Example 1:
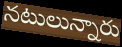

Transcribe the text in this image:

నటులున్నారు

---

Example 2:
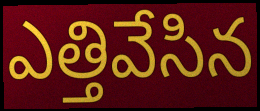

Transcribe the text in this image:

ఎత్తివేసిన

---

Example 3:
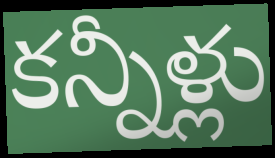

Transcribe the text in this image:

కన్నీళ్లు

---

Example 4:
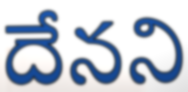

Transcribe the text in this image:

దేనని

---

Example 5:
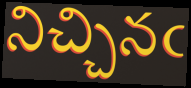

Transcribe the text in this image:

నిచ్చినఁ